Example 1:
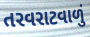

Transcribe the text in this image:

તરવરાટવાળું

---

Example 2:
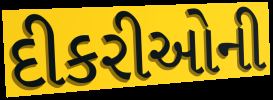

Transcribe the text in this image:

દીકરીઓની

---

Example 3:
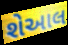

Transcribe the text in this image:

શેઆલ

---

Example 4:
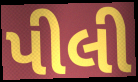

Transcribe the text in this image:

પીલી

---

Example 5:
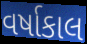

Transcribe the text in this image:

વર્ષાકાલ